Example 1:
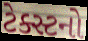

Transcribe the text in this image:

ટેક્સ્ટનો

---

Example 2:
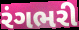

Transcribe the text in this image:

રંગભરી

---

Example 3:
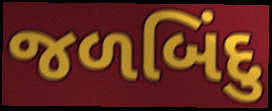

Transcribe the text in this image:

જળબિંદુ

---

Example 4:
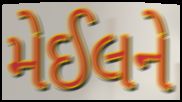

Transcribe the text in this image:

મેઈલને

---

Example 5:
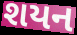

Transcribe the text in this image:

શયન